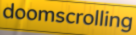
doomscrolling